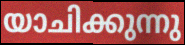
യാചിക്കുന്നു